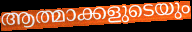
ആത്മാക്കളുടെയും